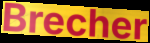
Brecher